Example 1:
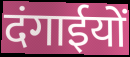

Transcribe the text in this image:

दंगाईयों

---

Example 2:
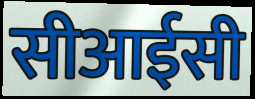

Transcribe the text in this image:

सीआईसी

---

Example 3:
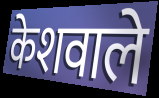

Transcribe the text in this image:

केशवाले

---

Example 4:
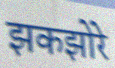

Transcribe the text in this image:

झकझोरे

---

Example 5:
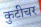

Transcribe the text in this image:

कुटीचर